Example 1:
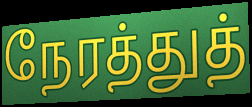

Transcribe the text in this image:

நேரத்துத்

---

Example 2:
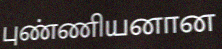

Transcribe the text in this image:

புண்ணியனான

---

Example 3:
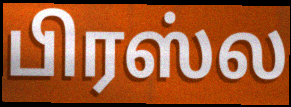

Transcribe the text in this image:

பிரஸ்ல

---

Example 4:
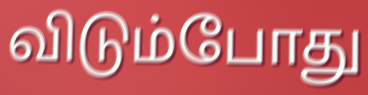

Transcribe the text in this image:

விடும்போது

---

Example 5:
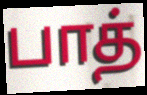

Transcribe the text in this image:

பாத்